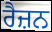
ਰੈਜ਼ਨ